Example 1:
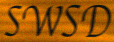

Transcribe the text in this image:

SWSD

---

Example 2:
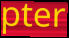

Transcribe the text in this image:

pter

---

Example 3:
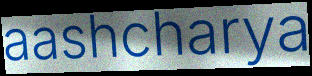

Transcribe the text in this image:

aashcharya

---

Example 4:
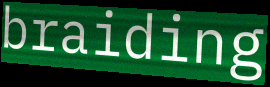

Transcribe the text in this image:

braiding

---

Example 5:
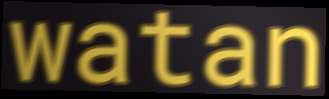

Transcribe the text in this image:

watan